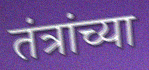
तंत्रांच्या